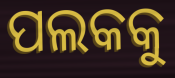
ପଲକକୁ